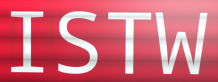
ISTW